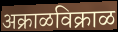
अक्राळविक्राळ